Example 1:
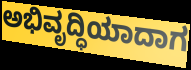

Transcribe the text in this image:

ಅಭಿವೃದ್ಧಿಯಾದಾಗ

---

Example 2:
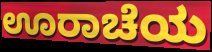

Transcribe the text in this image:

ಊರಾಚೆಯ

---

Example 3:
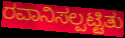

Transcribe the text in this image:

ರವಾನಿಸಲ್ಪಟ್ಟಿತು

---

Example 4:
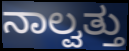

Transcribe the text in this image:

ನಾಲ್ವತ್ತು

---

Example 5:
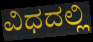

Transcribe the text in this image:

ವಿಧದಲ್ಲಿ